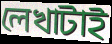
লেখাটাই